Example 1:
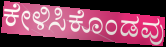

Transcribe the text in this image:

ಕೇಳಿಸಿಕೊಂಡವು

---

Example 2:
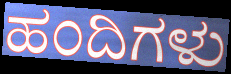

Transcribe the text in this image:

ಹಂದಿಗಳು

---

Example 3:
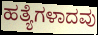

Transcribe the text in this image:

ಹತ್ಯೆಗಳಾದವು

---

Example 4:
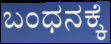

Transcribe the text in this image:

ಬಂಧನಕ್ಕೆ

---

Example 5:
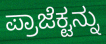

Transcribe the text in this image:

ಪ್ರಾಜೆಕ್ಟನ್ನು